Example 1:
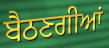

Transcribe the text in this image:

ਬੈਠਣਗੀਆਂ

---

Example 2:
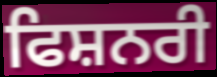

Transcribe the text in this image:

ਫਿਸ਼ਨਰੀ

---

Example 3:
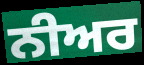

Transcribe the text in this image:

ਨੀਅਰ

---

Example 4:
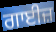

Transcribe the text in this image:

ਗਾਈਜ਼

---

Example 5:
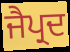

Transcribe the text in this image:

ਜੈਪ੍ਰਦ